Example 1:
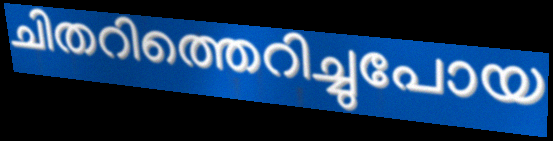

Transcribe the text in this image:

ചിതറിത്തെറിച്ചുപോയ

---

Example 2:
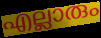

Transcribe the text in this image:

എല്ലാരും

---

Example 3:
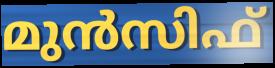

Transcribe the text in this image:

മുൻസിഫ്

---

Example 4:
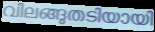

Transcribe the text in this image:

വിലങ്ങുതടിയായി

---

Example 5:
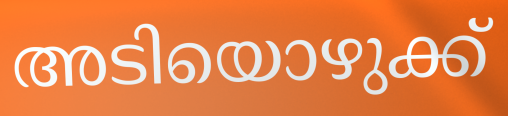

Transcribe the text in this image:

അടിയൊഴുക്ക്